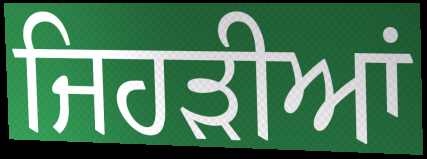
ਜਿਹੜੀਆਂ